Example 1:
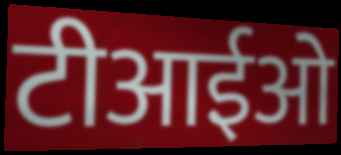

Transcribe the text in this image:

टीआईओ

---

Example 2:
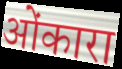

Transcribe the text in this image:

ओंकारा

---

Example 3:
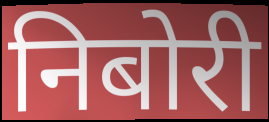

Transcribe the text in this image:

निबोरी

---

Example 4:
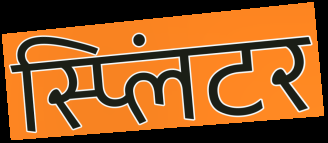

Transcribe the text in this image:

स्प्लिंटर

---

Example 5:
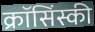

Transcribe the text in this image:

क्रॉसिंस्की